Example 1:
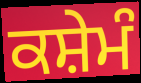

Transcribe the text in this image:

ਕਸ਼ੇਮੰ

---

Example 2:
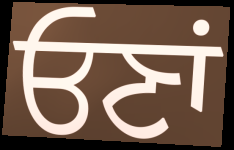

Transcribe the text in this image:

ਓਣਾਂ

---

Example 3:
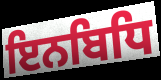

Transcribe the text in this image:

ਇਨਬਿਧਿ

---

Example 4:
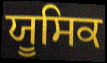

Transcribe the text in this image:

ਯੂਸਿਕ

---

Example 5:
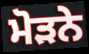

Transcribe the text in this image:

ਮੋੜਨੇ